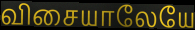
விசையாலேயே